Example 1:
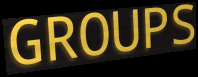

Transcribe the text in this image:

GROUPS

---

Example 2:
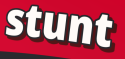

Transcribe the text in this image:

stunt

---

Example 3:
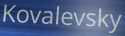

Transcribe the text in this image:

Kovalevsky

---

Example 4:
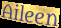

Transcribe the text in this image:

Aileen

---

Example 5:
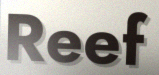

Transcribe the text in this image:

Reef